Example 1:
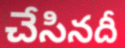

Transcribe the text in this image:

చేసినదీ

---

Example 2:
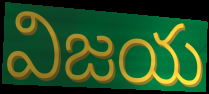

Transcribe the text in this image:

విజయ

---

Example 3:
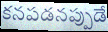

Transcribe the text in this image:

కనపడనప్పుడే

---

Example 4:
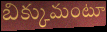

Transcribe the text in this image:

బిక్కుమంటూ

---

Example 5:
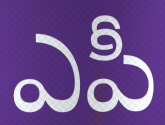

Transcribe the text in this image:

ఎపీ